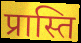
प्रास्ति